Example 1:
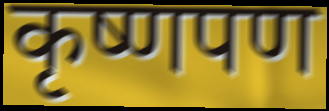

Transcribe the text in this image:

कृष्णपण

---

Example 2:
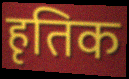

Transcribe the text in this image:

हृतिक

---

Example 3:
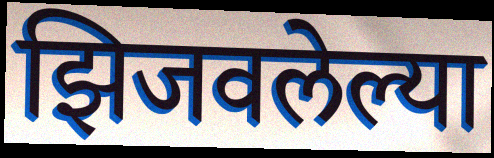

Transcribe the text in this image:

झिजवलेल्या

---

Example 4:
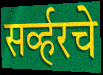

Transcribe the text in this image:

सर्व्हरचे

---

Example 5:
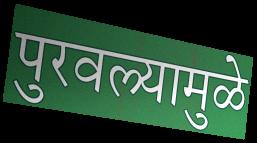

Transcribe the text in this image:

पुरवल्यामुळे